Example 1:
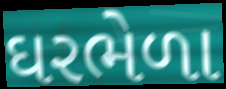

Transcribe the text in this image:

ઘરભેળા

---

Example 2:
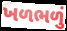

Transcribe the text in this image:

ખળભળું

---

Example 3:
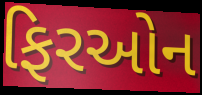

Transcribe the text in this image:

ફિરઓન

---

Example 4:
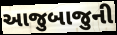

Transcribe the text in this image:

આજુબાજુની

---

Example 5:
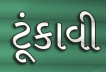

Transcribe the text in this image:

ટૂંકાવી